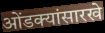
ओंडक्यांसारखे